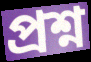
প্ৰশ্ন